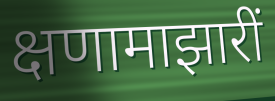
क्षणामाझारीं